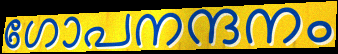
ഗോപനന്ദനം